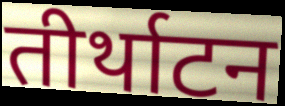
तीर्थाटन